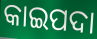
କାଇପଦା